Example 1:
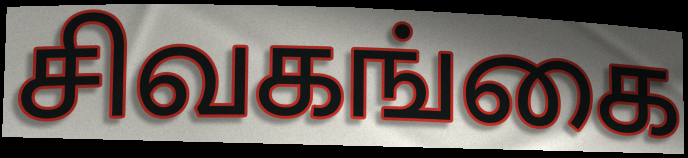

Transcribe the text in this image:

சிவகங்கை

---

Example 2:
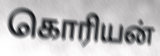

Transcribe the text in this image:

கொரியன்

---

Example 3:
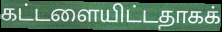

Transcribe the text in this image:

கட்டளையிட்டதாகக்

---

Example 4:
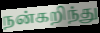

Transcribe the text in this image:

நன்கறிந்து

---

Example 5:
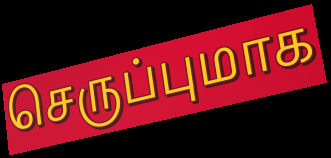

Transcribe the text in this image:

செருப்புமாக